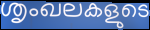
ശൃംഖലകളുടെ